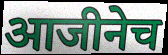
आजीनेच